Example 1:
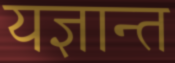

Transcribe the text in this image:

यज्ञान्त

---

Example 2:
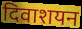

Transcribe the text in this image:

दिवाशयन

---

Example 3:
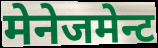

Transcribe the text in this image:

मेनेजमेन्ट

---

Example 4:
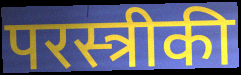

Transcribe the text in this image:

परस्त्रीकी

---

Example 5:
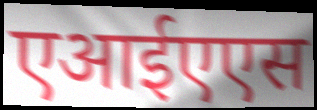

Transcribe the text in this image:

एआईएएस